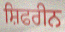
ਸ਼ਿਫਰੀਨ